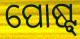
ପୋଷ୍ଟ୍